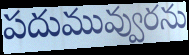
పదుమువ్వురను